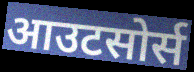
आउटसोर्स